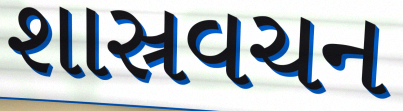
શાસ્રવચન